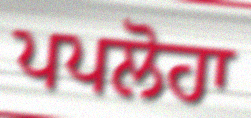
ਪਪਲੋਹਾ